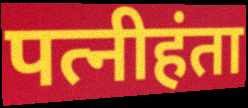
पत्नीहंता